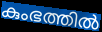
കുംഭത്തിൽ